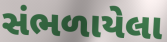
સંભળાયેલા